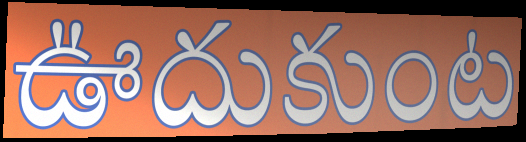
ఊదుకుంట